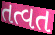
તત્વત